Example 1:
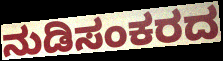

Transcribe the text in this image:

ನುಡಿಸಂಕರದ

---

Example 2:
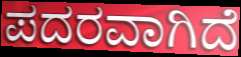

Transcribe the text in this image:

ಪದರವಾಗಿದೆ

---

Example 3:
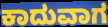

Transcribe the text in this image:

ಕಾದುವಾಗ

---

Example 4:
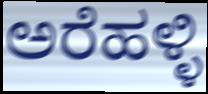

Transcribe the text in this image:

ಅರೆಹಳ್ಳಿ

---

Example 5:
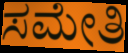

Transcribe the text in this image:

ಸಮೇತಿ